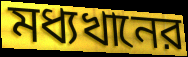
মধ্যখানের